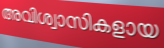
അവിശ്വാസികളായ